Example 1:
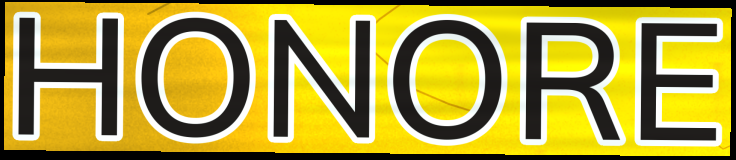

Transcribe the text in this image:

HONORE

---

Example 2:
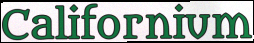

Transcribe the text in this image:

Californium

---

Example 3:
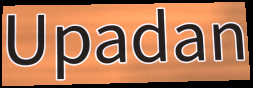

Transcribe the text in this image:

Upadan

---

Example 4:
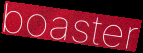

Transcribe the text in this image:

boaster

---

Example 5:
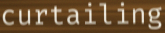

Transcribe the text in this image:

curtailing